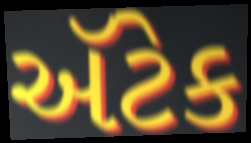
ઍટેક